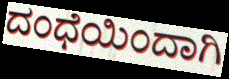
ದಂಧೆಯಿಂದಾಗಿ